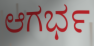
ಆಗರ್ಭ